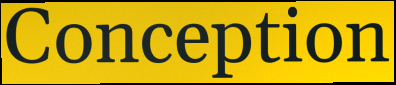
Conception